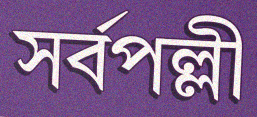
সৰ্বপল্লী